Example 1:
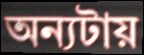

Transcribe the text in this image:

অন্যটায়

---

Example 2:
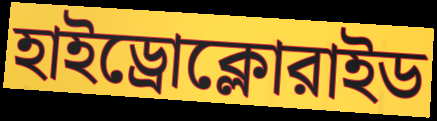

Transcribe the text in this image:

হাইড্রোক্লোরাইড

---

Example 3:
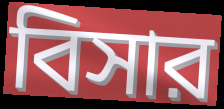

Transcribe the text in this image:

বিসার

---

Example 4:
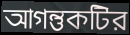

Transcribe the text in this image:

আগন্তুকটির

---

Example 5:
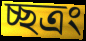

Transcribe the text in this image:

চ্ছত্রং